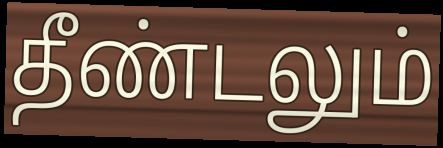
தீண்டலும்